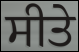
ਸੀਤੇ